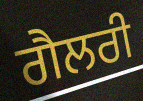
ਗੈਲਰੀ